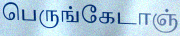
பெருங்கேடாஞ்